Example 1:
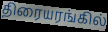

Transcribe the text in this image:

திரையரங்கில்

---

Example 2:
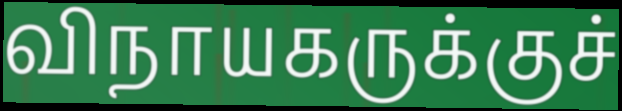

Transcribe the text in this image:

விநாயகருக்குச்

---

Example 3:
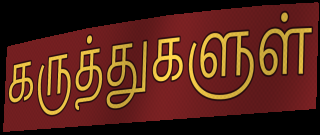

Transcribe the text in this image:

கருத்துகளுள்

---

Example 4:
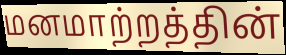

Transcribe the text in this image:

மனமாற்றத்தின்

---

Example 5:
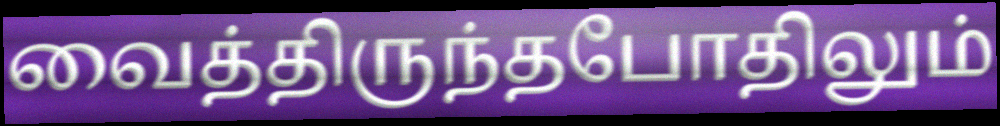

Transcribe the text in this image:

வைத்திருந்தபோதிலும்